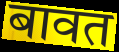
बावत